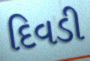
દિવડી